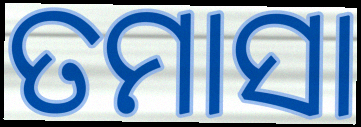
ତମାସା